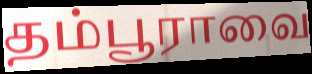
தம்பூராவை